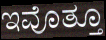
ಇವೊತ್ತೂ